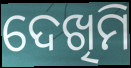
ଦେଖିମି